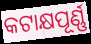
କଟାକ୍ଷପୂର୍ଣ୍ଣ